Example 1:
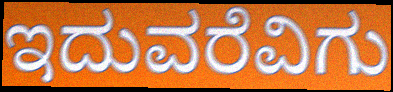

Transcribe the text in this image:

ಇದುವರೆವಿಗು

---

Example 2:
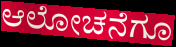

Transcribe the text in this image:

ಆಲೋಚನೆಗೂ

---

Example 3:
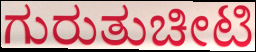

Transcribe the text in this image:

ಗುರುತುಚೀಟಿ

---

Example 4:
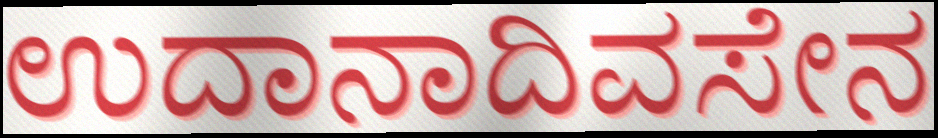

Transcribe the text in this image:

ಉದಾನಾದಿವಸೇನ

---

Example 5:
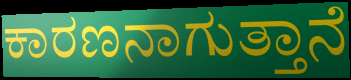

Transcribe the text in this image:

ಕಾರಣನಾಗುತ್ತಾನೆ